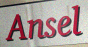
Ansel